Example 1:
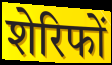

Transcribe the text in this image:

शेरिफों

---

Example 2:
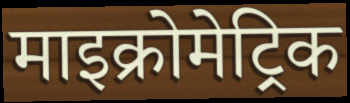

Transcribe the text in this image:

माइक्रोमेट्रिक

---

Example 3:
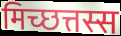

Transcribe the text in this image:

मिच्छत्तस्स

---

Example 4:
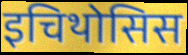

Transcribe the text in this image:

इचिथोसिस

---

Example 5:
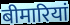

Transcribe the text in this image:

बीमारियां